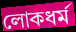
লোকধর্ম